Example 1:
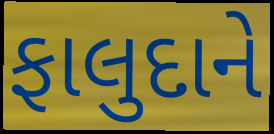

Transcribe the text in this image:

ફાલુદાને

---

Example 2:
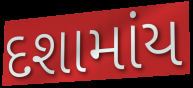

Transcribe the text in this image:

દશામાંય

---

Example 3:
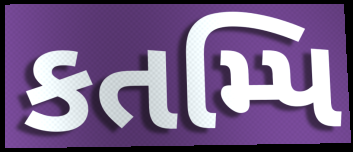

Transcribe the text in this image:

કતમ્પિ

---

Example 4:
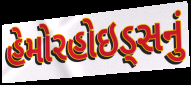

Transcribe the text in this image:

હેમોરહોઇડ્સનું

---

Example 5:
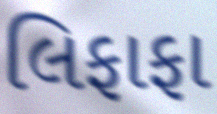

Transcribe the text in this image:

લિફાફા